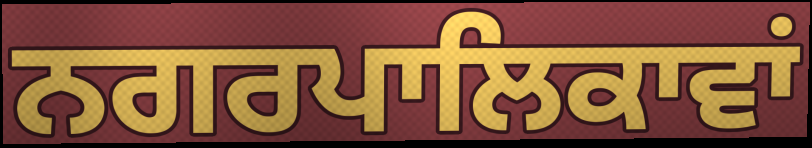
ਨਗਰਪਾਲਿਕਾਵਾਂ